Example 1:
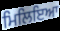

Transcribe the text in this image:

ਮਿਲਿਇਆ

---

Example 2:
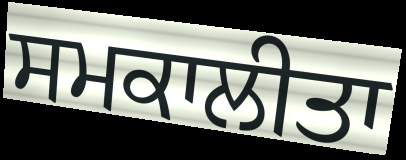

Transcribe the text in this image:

ਸਮਕਾਲੀਤਾ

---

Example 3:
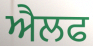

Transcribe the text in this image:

ਐਲਫ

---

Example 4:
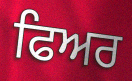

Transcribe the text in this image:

ਫਿਅਰ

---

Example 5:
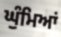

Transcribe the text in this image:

ਘੁੰਮਿਆਂ